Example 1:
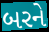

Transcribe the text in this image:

બરને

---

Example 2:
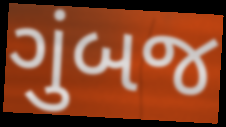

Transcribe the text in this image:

ગુંબજ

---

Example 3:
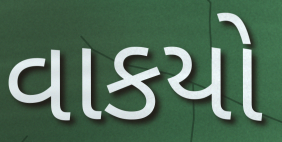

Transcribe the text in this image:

વાકયો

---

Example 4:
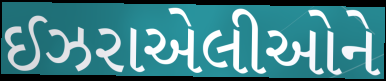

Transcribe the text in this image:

ઈઝરાએલીઓને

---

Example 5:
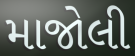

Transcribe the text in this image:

માજોલી